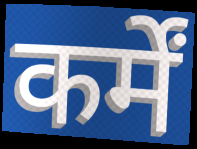
कर्में